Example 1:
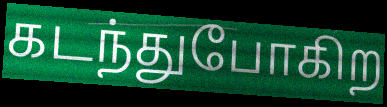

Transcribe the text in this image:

கடந்துபோகிற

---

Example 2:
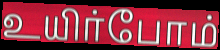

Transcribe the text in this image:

உயிர்போம்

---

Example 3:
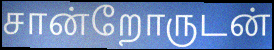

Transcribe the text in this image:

சான்றோருடன்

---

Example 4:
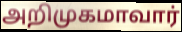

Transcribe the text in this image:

அறிமுகமாவார்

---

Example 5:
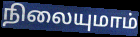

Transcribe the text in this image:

நிலையுமாம்